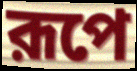
রূপে